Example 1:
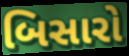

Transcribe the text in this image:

બિસારો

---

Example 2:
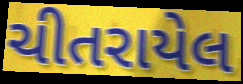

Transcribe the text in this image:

ચીતરાયેલ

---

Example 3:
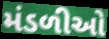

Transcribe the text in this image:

મંડળીઓ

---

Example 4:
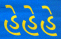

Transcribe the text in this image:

હેહેહે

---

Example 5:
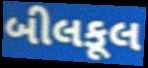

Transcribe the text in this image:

બીલકૂલ